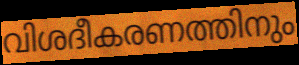
വിശദീകരണത്തിനും